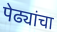
पेढ्यांचा